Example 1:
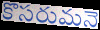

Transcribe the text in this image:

కొసరుమనె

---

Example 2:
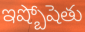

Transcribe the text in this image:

ఇష్బోషెతు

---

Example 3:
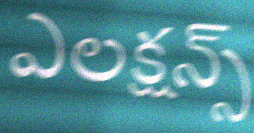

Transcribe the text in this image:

ఎలక్షన్స్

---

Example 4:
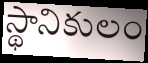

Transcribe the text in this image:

స్థానికులం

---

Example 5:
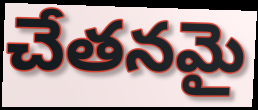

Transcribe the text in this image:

చేతనమై